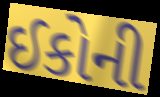
ઈકોની